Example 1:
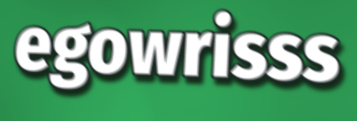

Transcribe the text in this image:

egowrisss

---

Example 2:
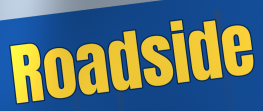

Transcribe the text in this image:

Roadside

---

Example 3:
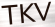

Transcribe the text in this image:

TKV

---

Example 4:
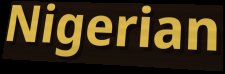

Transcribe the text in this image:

Nigerian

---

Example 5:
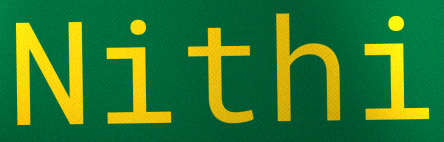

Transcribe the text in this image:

Nithi